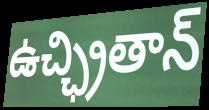
ఉచ్ఛ్రితాన్